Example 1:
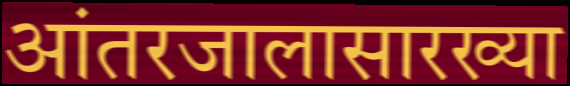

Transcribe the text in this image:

आंतरजालासारख्या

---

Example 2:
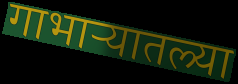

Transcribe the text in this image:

गाभाऱ्यातल्या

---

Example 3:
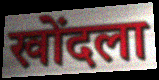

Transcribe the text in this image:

खोंदला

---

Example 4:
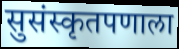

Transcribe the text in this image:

सुसंस्कृतपणाला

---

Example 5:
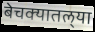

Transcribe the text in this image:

बेचक्यातल्या